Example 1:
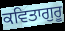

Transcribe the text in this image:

ਕਵਿਤਾਗੁਰੂ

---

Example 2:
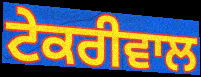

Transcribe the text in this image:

ਟੇਕਰੀਵਾਲ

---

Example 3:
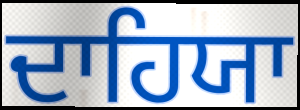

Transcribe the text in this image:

ਦਾਹਿਯਾ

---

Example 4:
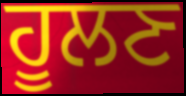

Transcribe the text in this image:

ਹੂਲਣ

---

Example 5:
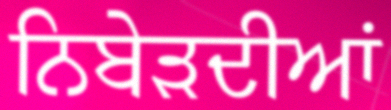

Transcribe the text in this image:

ਨਿਬੇੜਦੀਆਂ